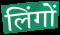
लिंगों